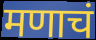
मणाचं